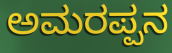
ಅಮರಪ್ಪನ